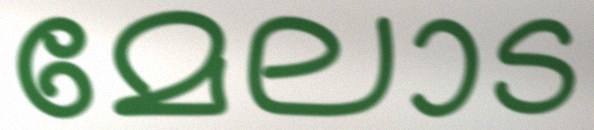
മേലാട